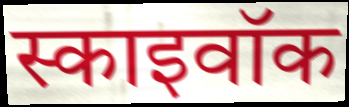
स्काइवॉक